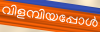
വിളമ്പിയപ്പോൾ